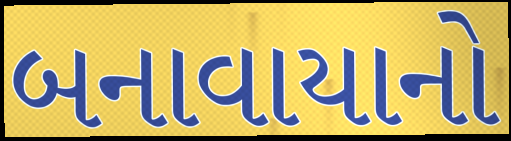
બનાવાયાનો